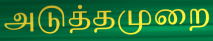
அடுத்தமுறை